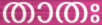
താതഃ